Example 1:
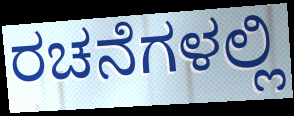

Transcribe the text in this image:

ರಚನೆಗಳಲ್ಲಿ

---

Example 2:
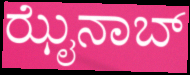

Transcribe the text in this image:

ಝೈನಾಬ್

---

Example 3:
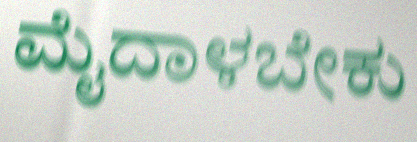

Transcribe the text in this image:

ಮೈದಾಳಬೇಕು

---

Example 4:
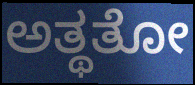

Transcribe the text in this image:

ಅತ್ಥತೋ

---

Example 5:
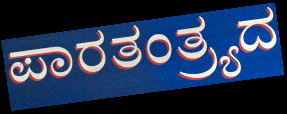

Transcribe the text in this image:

ಪಾರತಂತ್ರ್ಯದ